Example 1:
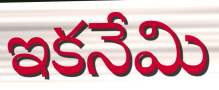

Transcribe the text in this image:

ఇకనేమి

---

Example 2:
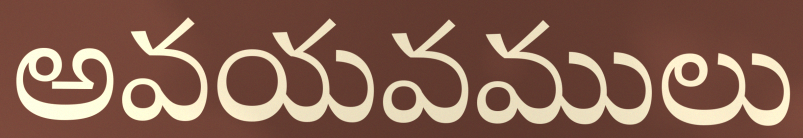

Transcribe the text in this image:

అవయవములు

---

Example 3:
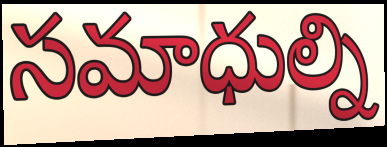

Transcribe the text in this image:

సమాధుల్ని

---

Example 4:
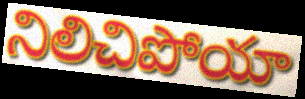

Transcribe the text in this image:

నిలిచిపోయా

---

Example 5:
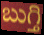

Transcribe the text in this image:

బుగ్తి